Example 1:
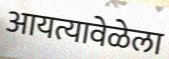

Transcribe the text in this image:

आयत्यावेळेला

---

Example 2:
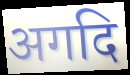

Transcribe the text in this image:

अगदि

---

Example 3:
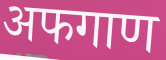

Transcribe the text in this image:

अफगाण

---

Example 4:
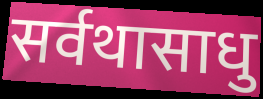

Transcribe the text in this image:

सर्वथासाधु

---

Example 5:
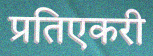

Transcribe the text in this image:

प्रतिएकरी